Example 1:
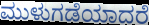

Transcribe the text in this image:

ಮುಳುಗಡೆಯಾದರೆ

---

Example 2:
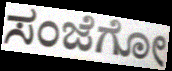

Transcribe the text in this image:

ಸಂಜೆಗೋ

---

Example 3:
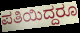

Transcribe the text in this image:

ಪತಿಯಿದ್ದರೂ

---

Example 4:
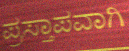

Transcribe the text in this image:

ಪ್ರಸ್ತಾಪವಾಗಿ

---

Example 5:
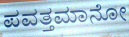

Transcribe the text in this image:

ಪವತ್ತಮಾನೋ